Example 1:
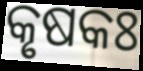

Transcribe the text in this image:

କୃଷକଃ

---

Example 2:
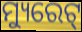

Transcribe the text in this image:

ମ୍ୟୁରେଟ୍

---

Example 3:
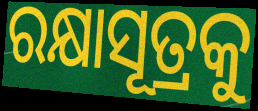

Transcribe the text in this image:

ରକ୍ଷାସୂତ୍ରକୁ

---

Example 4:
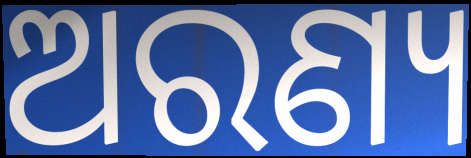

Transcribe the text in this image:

ଅରଣ୍ୟ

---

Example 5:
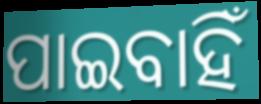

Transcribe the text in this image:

ପାଇବାହିଁ